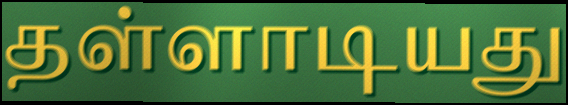
தள்ளாடியது